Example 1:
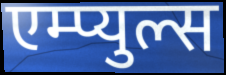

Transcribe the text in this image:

एम्प्युल्स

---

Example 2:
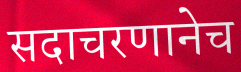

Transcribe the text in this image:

सदाचरणानेच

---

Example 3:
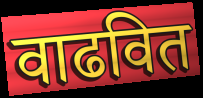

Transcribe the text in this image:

वाढवित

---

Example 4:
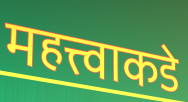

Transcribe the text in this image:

महत्त्वाकडे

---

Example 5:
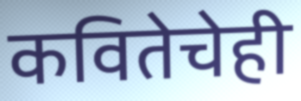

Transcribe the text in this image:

कवितेचेही